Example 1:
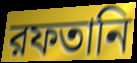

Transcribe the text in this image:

রফতানি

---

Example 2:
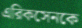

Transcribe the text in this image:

এরিকসেনকে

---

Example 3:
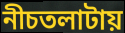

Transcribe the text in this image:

নীচতলাটায়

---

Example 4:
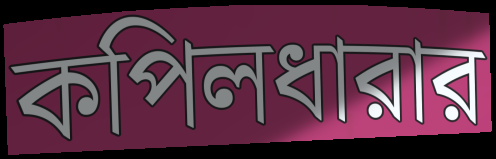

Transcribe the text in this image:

কপিলধারার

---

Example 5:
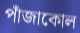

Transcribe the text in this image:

পাঁজাকোল